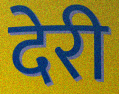
देरी